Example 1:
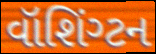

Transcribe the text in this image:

વૉશિંગ્ટન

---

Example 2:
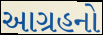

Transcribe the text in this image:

આગ્રહનો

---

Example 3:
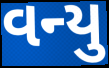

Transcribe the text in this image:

વન્યુ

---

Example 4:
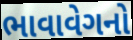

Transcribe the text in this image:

ભાવાવેગનો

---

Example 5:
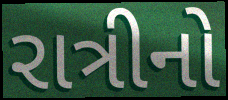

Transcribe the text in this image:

રાત્રીનો